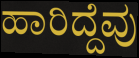
ಹಾರಿದ್ದೆವು